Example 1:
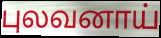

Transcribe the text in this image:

புலவனாய்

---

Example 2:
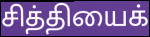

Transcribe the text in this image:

சித்தியைக்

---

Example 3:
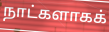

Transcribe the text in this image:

நாட்களாகக்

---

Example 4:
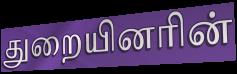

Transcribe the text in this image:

துறையினரின்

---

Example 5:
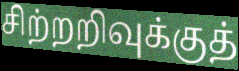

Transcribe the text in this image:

சிற்றறிவுக்குத்